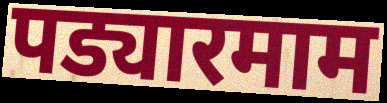
पड्यारमाम